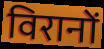
विरानों